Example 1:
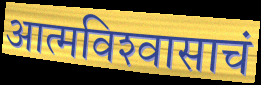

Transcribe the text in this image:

आत्मविश्वासाचं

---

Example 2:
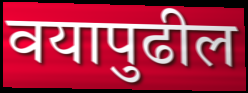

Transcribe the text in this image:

वयापुढील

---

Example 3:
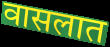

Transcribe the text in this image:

वासलात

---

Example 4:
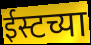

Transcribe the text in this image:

ईस्टच्या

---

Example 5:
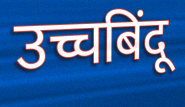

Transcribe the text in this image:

उच्चबिंदू